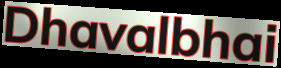
Dhavalbhai